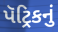
પૅટ્રિકનું